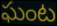
ఘంట